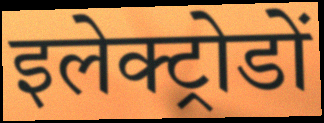
इलेक्ट्रोडों